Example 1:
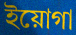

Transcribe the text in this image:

ইয়োগা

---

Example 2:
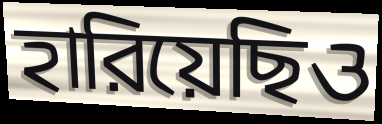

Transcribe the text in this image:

হারিয়েছিও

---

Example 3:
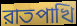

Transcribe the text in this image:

রাতপাখি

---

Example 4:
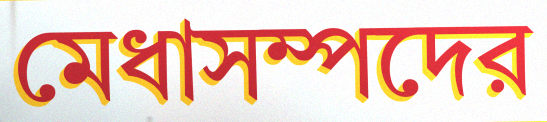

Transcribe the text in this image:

মেধাসম্পদের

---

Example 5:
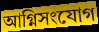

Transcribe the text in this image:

আগ্নিসংযোগ